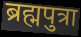
ब्रह्मपुत्रा